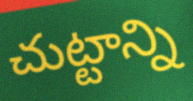
చుట్టాన్ని